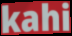
kahi